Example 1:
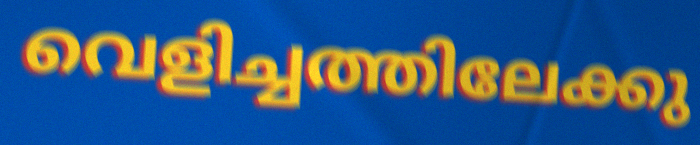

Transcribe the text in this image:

വെളിച്ചത്തിലേക്കു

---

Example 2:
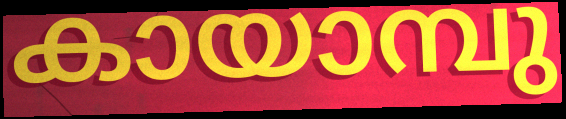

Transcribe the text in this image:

കായാമ്പു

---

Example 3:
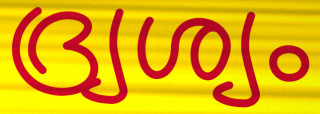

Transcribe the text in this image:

ദ്ര്യശ്യം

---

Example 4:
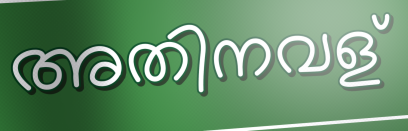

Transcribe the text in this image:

അതിനവള്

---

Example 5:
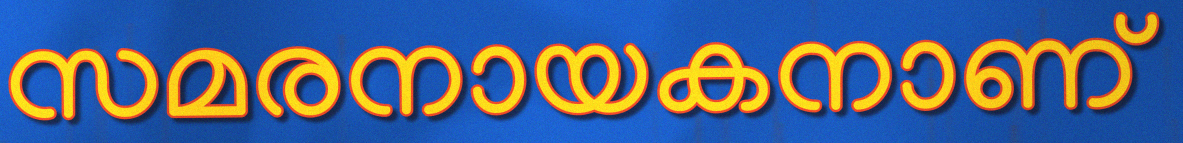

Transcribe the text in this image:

സമരനായകനാണ്